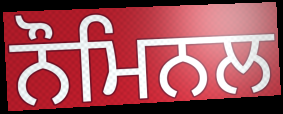
ਨੌਮਿਨਲ